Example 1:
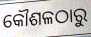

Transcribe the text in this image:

କୌଶଳଠାରୁ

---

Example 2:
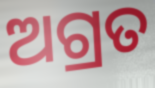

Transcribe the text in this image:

ଅଗ୍ରତ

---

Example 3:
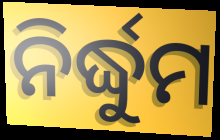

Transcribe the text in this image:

ନିର୍ଦ୍ଧୁମ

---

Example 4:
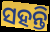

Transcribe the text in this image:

ସହନ୍ତି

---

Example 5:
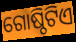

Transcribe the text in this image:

ଗୋଷ୍ଠିଟିଏ